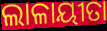
ଲାଳାୟୀତା